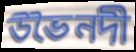
উভৈনদী